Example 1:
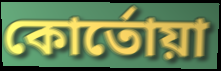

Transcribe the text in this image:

কোর্তোয়া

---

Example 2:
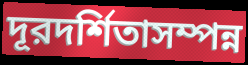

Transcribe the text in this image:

দূরদর্শিতাসম্পন্ন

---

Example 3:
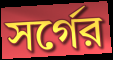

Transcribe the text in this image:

সর্গের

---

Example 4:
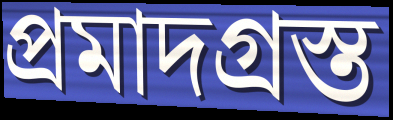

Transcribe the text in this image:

প্রমাদগ্রস্ত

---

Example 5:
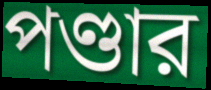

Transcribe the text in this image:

পণ্ডার